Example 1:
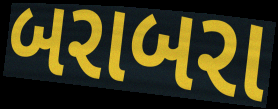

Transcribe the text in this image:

બરાબરા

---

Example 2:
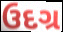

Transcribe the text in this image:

ઉદગ્ર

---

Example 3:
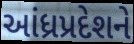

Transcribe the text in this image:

આંધ્રપ્રદેશને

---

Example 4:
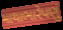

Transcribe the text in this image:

માથાભારેપણું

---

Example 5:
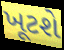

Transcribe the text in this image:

ખૂટશે